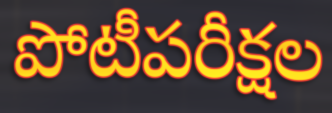
పోటీపరీక్షల